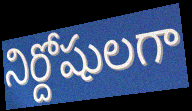
నిర్దోషులగా